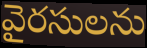
వైరసులను